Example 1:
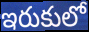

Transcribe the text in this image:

ఇరుకులో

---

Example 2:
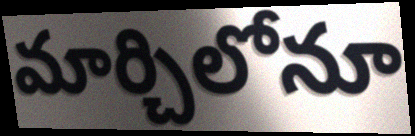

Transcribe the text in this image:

మార్చిలోనూ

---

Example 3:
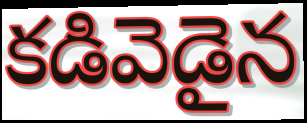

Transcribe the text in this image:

కడివెడైన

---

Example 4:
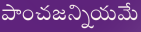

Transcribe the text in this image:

పాంచజన్నియమే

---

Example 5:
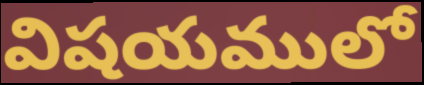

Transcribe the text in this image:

విషయములో